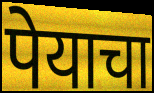
पेयाचा